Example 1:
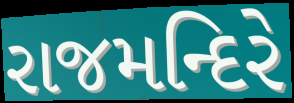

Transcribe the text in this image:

રાજમન્દિરે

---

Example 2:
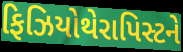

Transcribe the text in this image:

ફિઝિયોથેરાપિસ્ટને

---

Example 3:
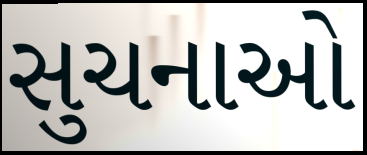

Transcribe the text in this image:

સુચનાઓ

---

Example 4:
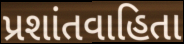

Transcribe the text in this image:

પ્રશાંતવાહિતા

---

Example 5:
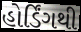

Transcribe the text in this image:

હોર્ડિંગથી